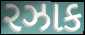
રઝાક